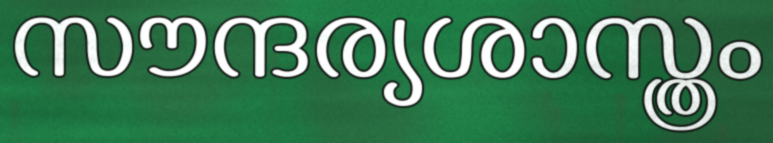
സൗന്ദര്യശാസ്ത്രം